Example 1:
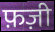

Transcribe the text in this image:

फ़ज़ी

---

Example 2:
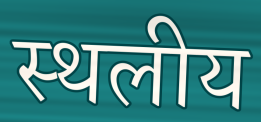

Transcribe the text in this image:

स्थलीय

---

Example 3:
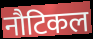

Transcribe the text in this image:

नौटिकल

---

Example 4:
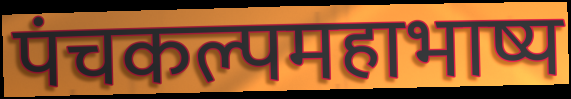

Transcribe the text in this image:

पंचकल्पमहाभाष्य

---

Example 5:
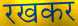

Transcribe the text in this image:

रखकर